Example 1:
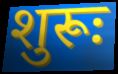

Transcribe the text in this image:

शुरूः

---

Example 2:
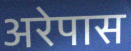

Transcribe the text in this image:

अरेपास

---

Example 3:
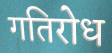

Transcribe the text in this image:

गतिरोध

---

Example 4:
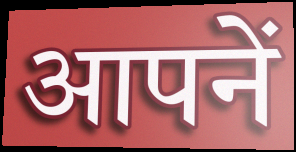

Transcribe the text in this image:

आपनें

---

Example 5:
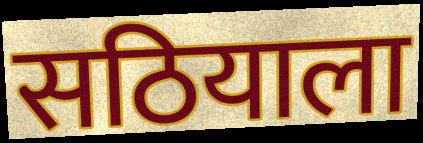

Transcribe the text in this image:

सठियाला